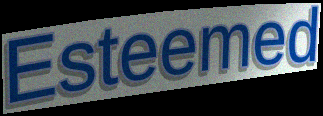
Esteemed